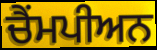
ਚੈਂਮਪੀਅਨ